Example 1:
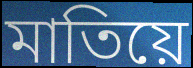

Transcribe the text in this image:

মাতিয়ে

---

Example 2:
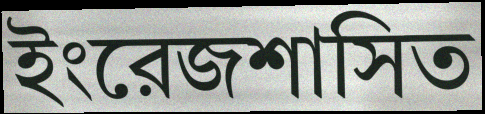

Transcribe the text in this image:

ইংরেজশাসিত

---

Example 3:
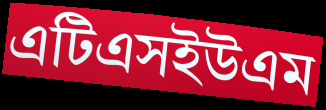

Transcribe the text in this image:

এটিএসইউএম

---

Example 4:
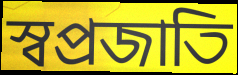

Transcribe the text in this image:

স্বপ্রজাতি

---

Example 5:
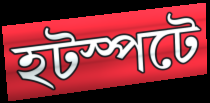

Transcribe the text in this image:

হটস্পটে